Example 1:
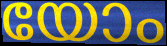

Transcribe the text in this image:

യോം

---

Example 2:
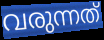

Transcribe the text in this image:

വരുന്നത്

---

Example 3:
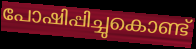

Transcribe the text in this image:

പോഷിപ്പിച്ചുകൊണ്ട്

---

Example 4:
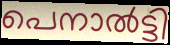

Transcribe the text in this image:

പെനാൽട്ടി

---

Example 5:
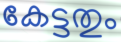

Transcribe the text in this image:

കേട്ടതും